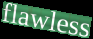
flawless